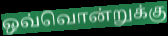
ஒவ்வொன்றுக்கு